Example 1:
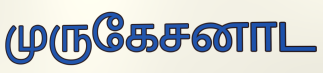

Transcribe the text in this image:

முருகேசனாட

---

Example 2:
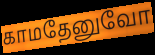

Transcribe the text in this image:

காமதேனுவோ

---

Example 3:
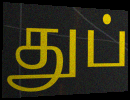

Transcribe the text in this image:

துப்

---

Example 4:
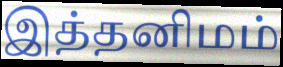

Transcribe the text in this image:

இத்தனிமம்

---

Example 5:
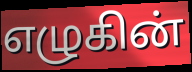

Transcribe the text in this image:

எழுகின்